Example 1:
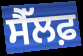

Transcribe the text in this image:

ਸੈੱਲਫ਼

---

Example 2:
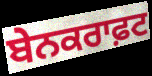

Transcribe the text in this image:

ਬੇਨਕਰਾਫ਼ਟ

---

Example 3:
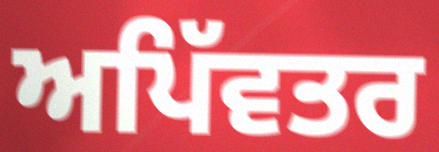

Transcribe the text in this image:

ਅਪਿੱਵਤਰ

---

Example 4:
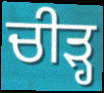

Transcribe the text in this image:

ਚੀੜ੍ਹ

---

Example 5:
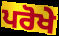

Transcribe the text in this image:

ਪਰੋਖੇ